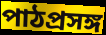
পাঠপ্রসঙ্গ